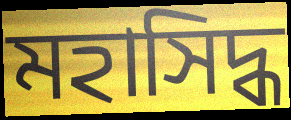
মহাসিদ্ধ